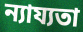
ন্যায্যতা